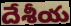
దేశీయ